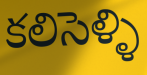
కలిసెళ్ళి